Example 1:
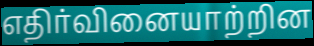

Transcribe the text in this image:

எதிர்வினையாற்றின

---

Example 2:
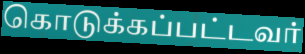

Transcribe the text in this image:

கொடுக்கப்பட்டவர்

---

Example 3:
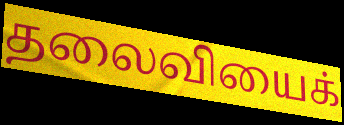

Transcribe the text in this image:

தலைவியைக்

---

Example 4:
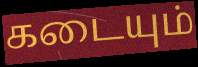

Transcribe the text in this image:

கடையும்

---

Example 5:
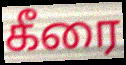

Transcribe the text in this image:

கீரை